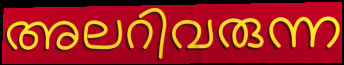
അലറിവരുന്ന